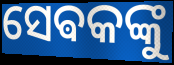
ସେଵକଙ୍କୁ